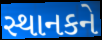
સ્થાનકને